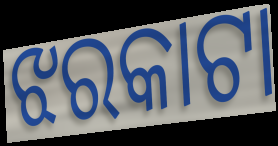
ଝରକାଟା